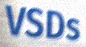
VSDs